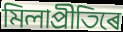
মিলাপ্ৰীতিৰে